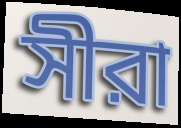
সীরা